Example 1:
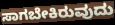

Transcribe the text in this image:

ಸಾಗಬೇಕಿರುವುದು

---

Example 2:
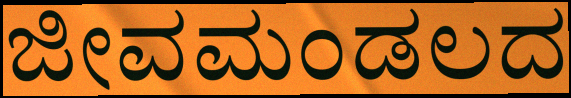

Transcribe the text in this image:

ಜೀವಮಂಡಲದ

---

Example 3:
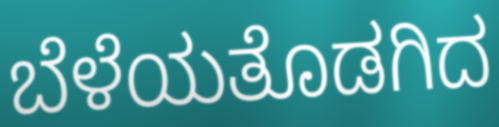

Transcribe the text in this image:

ಬೆಳೆಯತೊಡಗಿದ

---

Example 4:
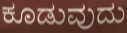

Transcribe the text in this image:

ಕೂಡುವುದು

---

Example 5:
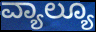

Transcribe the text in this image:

ವ್ಯಾಲ್ಯೂ